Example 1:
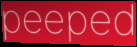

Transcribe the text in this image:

peeped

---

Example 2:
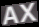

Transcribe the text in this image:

AX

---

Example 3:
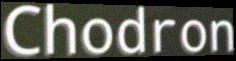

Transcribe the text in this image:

Chodron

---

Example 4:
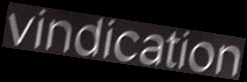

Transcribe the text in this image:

vindication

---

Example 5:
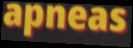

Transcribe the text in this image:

apneas